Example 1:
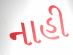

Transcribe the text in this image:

નાહી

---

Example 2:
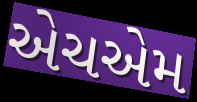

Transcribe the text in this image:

એચએમ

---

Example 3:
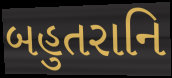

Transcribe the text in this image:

બહુતરાનિ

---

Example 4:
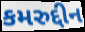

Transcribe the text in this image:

કમરુદ્દીન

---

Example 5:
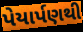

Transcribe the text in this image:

પેયાર્પણથી